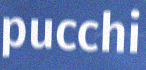
pucchi